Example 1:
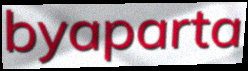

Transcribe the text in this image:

byaparta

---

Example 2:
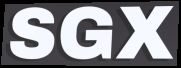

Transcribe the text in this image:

SGX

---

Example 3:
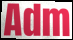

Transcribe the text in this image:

Adm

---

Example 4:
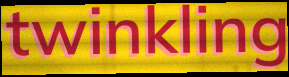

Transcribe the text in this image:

twinkling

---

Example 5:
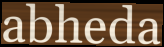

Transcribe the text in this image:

abheda